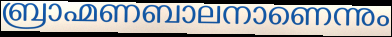
ബ്രാഹ്മണബാലനാണെന്നും